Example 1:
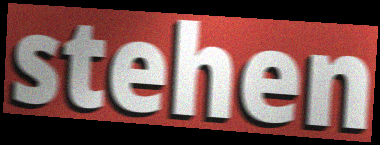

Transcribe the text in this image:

stehen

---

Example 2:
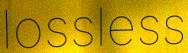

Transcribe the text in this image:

lossless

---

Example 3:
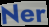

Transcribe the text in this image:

Ner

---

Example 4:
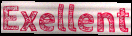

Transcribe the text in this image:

Exellent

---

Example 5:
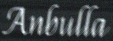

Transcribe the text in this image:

Anbulla